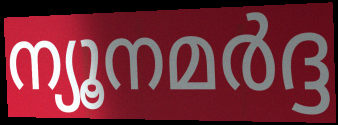
ന്യൂനമർദ്ദ